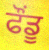
ਫੌਂਡੂ